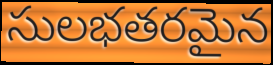
సులభతరమైన